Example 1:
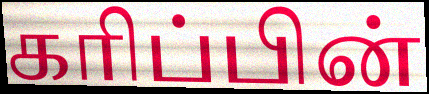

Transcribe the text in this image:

கரிப்பின்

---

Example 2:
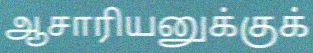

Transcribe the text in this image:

ஆசாரியனுக்குக்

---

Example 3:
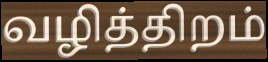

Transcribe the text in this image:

வழித்திறம்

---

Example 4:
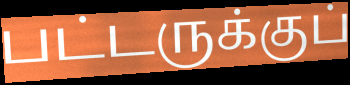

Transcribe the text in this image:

பட்டருக்குப்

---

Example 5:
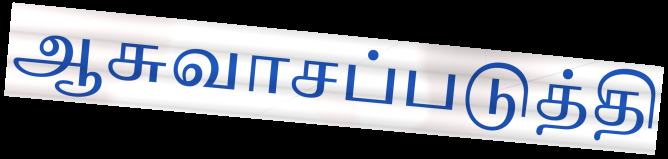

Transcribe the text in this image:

ஆசுவாசப்படுத்தி